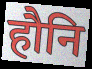
हौनि